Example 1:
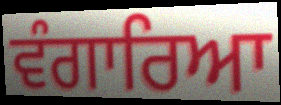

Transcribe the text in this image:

ਵੰਗਾਰਿਆ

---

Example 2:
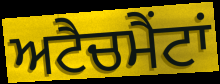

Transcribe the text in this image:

ਅਟੈਚਮੈਂਟਾਂ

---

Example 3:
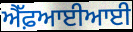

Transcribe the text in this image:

ਐੱਫ਼ਆਈਆਈ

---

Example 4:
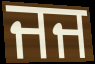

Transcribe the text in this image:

ਜਜ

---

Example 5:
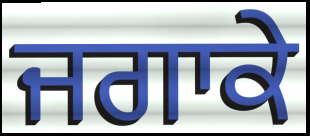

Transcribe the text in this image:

ਜਗਾਕੇ